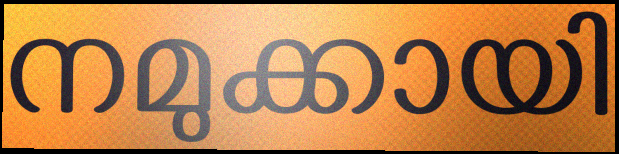
നമുക്കായി